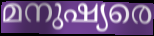
മനുഷ്യരെ